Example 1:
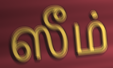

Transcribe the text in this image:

ஸீம்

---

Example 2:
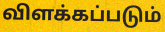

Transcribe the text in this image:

விளக்கப்படும்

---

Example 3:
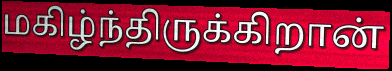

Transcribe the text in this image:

மகிழ்ந்திருக்கிறான்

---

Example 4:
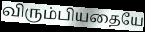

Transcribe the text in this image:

விரும்பியதையே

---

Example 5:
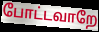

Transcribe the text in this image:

போட்டவாறே